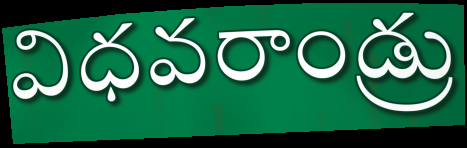
విధవరాండ్రు